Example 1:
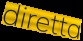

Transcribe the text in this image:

diretta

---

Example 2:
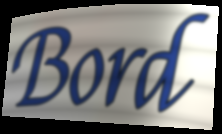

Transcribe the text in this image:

Bord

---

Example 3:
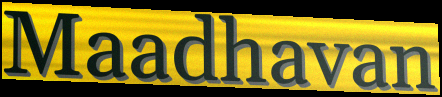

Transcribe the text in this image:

Maadhavan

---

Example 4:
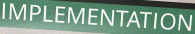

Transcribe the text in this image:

IMPLEMENTATION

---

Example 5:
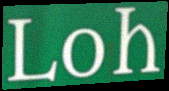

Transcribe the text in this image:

Loh